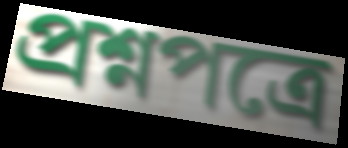
প্রশ্নপত্রে